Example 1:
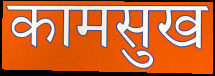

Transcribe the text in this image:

कामसुख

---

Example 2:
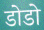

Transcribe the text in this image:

डोडो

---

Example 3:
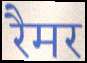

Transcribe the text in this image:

रैमर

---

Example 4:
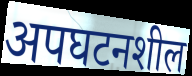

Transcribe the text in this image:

अपघटनशील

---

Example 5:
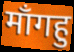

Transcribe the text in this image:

माँगहु